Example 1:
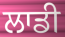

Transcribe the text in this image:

ਲਾਡੀ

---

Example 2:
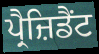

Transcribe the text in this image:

ਪ੍ਰੈਜ਼ਿਡੈਂਟ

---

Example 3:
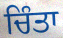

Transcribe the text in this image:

ਚਿੰਤਾ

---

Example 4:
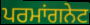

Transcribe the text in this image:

ਪਰਮਾਂਗਨੇਟ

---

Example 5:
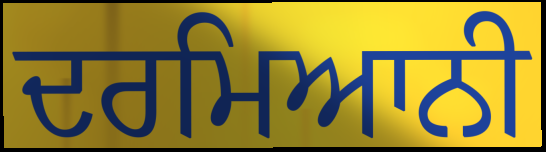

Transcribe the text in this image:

ਦਰਮਿਆਨੀ